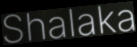
Shalaka